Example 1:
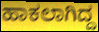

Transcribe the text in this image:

ಹಾಕಲಾಗಿದ್ದ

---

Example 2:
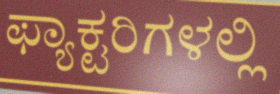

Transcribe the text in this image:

ಫ್ಯಾಕ್ಟರಿಗಳಲ್ಲಿ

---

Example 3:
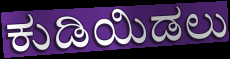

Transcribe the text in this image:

ಕುಡಿಯಿಡಲು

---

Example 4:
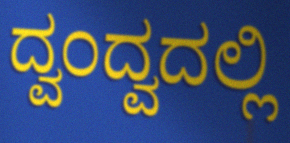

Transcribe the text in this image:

ದ್ವಂದ್ವದಲ್ಲಿ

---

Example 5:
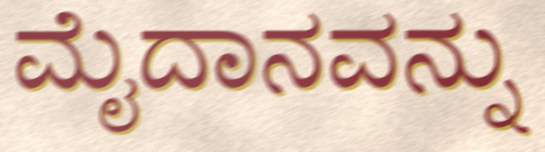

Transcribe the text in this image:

ಮೈದಾನವನ್ನು